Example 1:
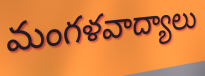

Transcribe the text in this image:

మంగళవాద్యాలు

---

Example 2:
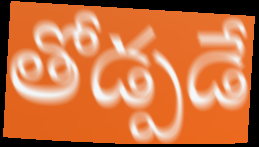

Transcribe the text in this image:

తోడ్పడే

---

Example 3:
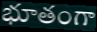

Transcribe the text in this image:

భూతంగా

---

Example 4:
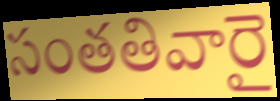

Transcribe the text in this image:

సంతతివారై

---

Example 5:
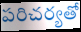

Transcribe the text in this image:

పరిచర్యతో